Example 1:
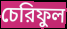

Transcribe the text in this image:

চেরিফুল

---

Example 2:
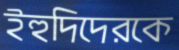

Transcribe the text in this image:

ইহুদিদেরকে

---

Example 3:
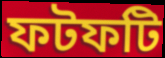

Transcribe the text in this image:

ফটফটি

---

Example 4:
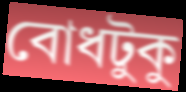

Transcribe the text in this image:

বোধটুকু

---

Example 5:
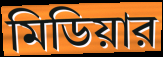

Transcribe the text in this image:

মিডিয়ার